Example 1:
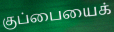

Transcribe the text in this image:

குப்பையைக்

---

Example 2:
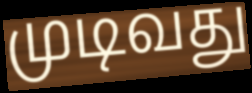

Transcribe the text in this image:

முடிவது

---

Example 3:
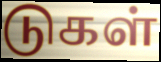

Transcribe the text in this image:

டுகள்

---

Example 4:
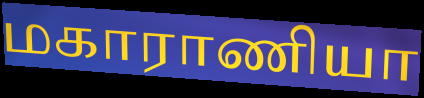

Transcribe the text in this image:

மகாராணியா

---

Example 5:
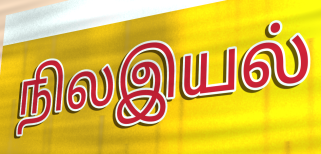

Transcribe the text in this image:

நிலஇயல்